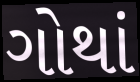
ગોથાં